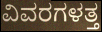
ವಿವರಗಳತ್ತ